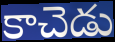
కాచెడు